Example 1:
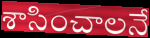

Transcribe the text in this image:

శాసించాలనే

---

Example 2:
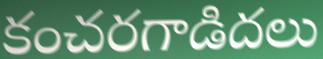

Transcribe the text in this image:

కంచరగాడిదలు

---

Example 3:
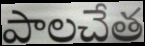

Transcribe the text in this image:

పాలచేత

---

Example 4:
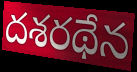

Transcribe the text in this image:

దశరథేన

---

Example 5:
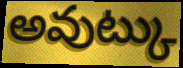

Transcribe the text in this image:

అవుట్కు